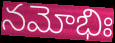
నమోభిః